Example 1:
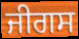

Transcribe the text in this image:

ਜੀਗਸ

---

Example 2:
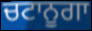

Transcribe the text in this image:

ਚਟਾਨੂਗਾ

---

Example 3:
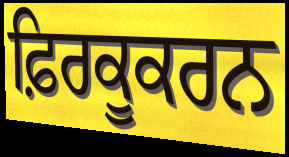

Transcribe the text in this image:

ਫ਼ਿਰਕੂਕਰਨ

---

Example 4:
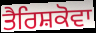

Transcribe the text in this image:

ਤੈਰਿਸ਼ਕੋਵਾ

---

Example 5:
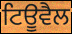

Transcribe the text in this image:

ਟਿਊਵੈਲ